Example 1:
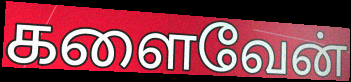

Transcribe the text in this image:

களைவேன்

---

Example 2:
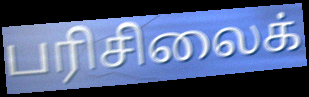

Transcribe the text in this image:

பரிசிலைக்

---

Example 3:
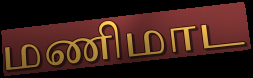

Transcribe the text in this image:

மணிமாட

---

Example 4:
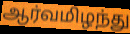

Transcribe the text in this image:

ஆர்வமிழந்து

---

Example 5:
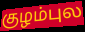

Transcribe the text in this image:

குழம்புல